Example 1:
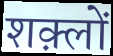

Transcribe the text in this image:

शक़्लों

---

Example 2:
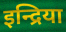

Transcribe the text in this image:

इन्द्रिया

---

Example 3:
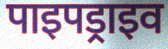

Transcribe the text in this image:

पाइपड्राइव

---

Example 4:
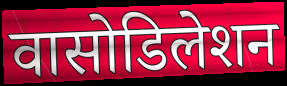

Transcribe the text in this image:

वासोडिलेशन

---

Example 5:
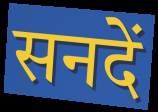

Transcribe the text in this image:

सनदें